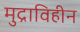
मुद्राविहीन